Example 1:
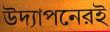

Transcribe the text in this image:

উদ্যাপনেরই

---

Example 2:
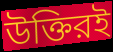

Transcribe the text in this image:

উক্তিরই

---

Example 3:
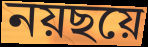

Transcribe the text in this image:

নয়ছয়ে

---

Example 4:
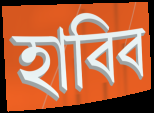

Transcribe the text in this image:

হাবিব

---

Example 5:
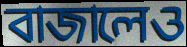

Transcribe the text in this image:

বাজালেও